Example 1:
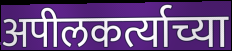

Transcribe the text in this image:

अपीलकर्त्याच्या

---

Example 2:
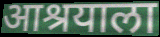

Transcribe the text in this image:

आश्रयाला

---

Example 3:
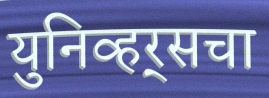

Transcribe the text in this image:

युनिव्हर्सचा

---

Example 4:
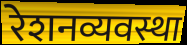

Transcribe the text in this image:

रेशनव्यवस्था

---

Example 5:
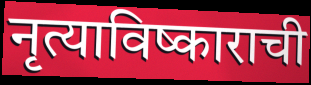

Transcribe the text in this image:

नृत्याविष्काराची